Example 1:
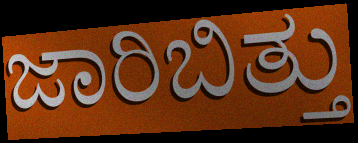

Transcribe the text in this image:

ಜಾರಿಬಿತ್ತು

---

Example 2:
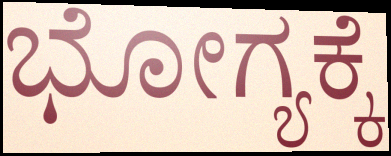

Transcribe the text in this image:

ಭೋಗ್ಯಕ್ಕೆ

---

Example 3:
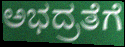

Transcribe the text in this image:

ಅಭದ್ರತೆಗೆ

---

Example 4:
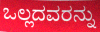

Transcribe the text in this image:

ಒಲ್ಲದವರನ್ನು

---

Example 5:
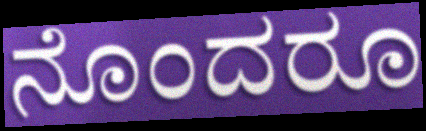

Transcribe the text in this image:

ನೊಂದರೂ